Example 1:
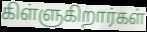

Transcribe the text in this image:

கிள்ளுகிறார்கள்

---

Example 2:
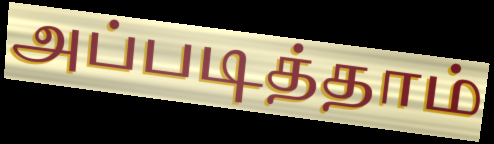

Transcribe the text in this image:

அப்படித்தாம்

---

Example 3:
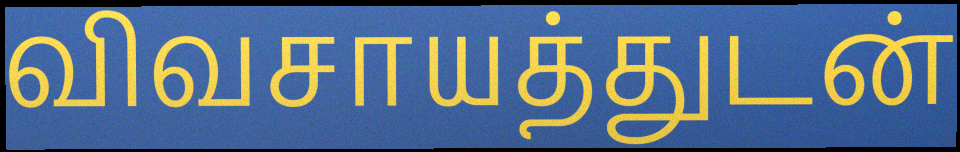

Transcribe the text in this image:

விவசாயத்துடன்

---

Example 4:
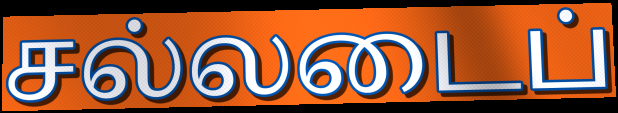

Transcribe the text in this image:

சல்லடைப்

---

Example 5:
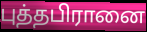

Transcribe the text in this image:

புத்தபிரானை